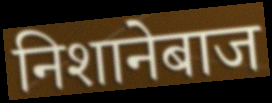
निशानेबाज